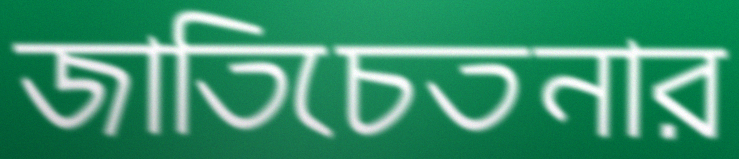
জাতিচেতনার